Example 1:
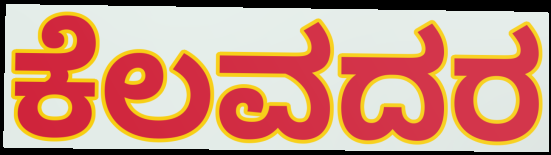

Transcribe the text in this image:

ಕೆಲವದರ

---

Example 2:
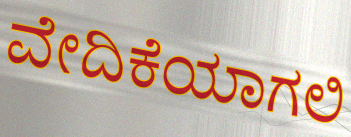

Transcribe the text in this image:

ವೇದಿಕೆಯಾಗಲಿ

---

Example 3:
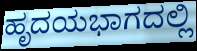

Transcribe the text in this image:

ಹೃದಯಭಾಗದಲ್ಲಿ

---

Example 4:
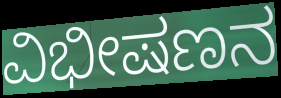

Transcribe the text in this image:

ವಿಭೀಷಣನ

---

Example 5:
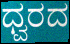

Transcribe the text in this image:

ಧ್ವರದ